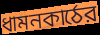
ধামনকাঠের